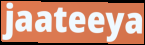
jaateeya